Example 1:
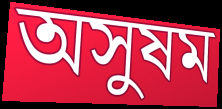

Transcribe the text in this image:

অসুষম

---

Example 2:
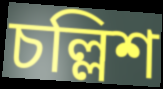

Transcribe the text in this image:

চল্লিশ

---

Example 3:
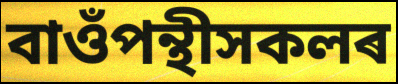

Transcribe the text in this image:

বাওঁপন্থীসকলৰ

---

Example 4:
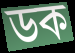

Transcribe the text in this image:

ডক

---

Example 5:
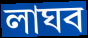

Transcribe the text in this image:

লাঘব